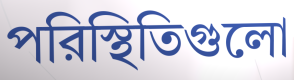
পরিস্থিতিগুলো